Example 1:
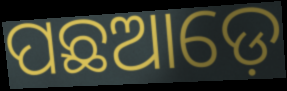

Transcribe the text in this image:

ପଛଆଡ଼େ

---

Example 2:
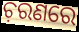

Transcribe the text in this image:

ଚ଼ରଣରେ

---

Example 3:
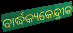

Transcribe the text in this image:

ବାର୍ଦ୍ଧକ୍ୟକେନ୍ଦ୍ରୀକ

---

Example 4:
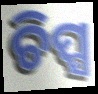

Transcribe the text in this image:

ଚିପ୍ସ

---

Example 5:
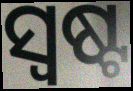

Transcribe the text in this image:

ସ୍ୱଷ୍ଟ